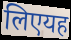
लिएयह